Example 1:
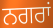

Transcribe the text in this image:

ਨਗਰਾਂ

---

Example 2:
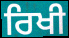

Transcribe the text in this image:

ਰਿਖੀ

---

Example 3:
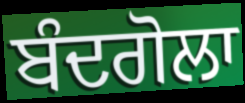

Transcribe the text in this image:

ਬੰਦਗੋਲਾ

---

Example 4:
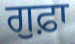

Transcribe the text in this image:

ਗੁਫ਼ਾ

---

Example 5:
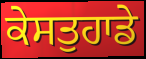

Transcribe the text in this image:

ਕੇਸਤੁਹਾਡੇ